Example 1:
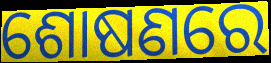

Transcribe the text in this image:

ଶୋଷଣରେ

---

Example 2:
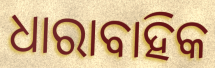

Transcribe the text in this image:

ଧାରାବାହିକ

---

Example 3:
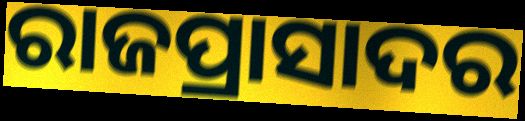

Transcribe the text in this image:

ରାଜପ୍ରାସାଦର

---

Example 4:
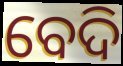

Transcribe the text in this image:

ବେଦି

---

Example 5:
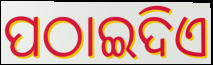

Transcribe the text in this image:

ପଠାଇଦିଏ